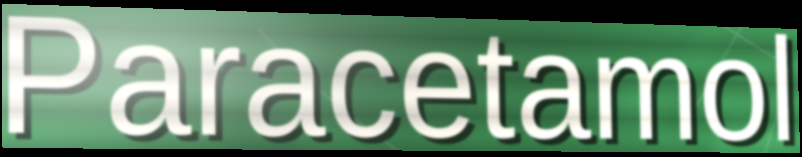
Paracetamol